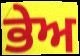
ਭੇਅ